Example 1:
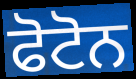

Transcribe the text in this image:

ਫੋਟੋਨ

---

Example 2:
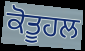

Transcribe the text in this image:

ਕੋਤੂਹਲ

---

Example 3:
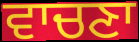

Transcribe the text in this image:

ਵਾਚਣਾ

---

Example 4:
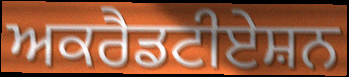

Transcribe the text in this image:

ਅਕਰੈਡਟੀਏਸ਼ਨ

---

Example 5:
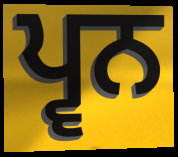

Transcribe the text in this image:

ਪ੍ਵਨ